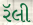
રૅલી